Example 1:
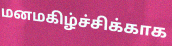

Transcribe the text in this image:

மனமகிழ்ச்சிக்காக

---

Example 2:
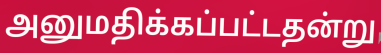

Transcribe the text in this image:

அனுமதிக்கப்பட்டதன்று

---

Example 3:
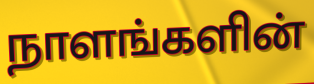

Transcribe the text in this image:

நாளங்களின்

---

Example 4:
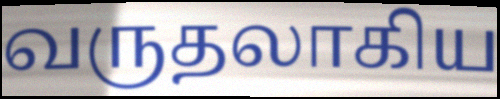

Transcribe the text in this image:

வருதலாகிய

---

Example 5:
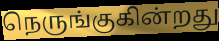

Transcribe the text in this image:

நெருங்குகின்றது